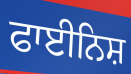
ਫਾਈਨਿਸ਼